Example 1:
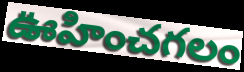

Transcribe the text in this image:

ఊహించగలం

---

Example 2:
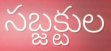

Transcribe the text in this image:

సబ్జక్టుల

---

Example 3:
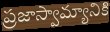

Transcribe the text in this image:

ప్రజాస్వామ్యానికి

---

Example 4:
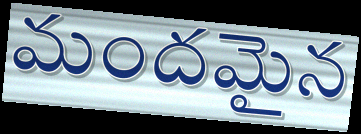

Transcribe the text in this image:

మందమైన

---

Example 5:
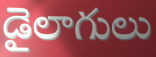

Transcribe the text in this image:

డైలాగులు